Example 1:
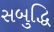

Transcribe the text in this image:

સબુદ્ધિ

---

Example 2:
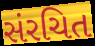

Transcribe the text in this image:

સંરચિત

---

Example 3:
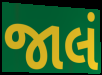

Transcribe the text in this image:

જાલં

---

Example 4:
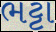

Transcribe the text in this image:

ભટ્ટા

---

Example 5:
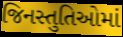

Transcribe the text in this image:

જિનસ્તુતિઓમાં